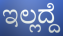
ಇಲ್ಲದ್ದೆ